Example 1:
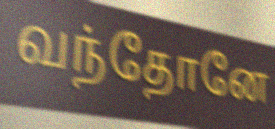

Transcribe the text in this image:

வந்தோனே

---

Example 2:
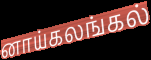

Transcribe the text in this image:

னாய்கலங்கல்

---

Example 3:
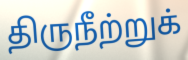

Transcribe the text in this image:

திருநீற்றுக்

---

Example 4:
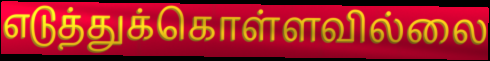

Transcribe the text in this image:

எடுத்துக்கொள்ளவில்லை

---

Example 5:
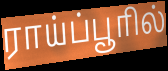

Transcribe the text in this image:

ராய்ப்பூரில்